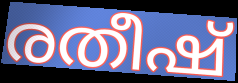
രതീഷ്